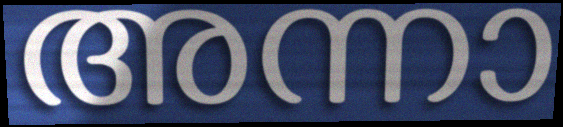
അന്നാ